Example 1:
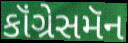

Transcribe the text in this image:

કૉંગ્રેસમૅન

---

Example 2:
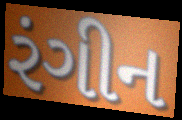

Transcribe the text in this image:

રંગીન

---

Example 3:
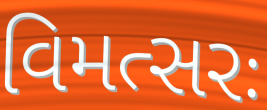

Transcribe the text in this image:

વિમત્સરઃ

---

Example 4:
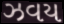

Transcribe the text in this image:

ઝવય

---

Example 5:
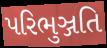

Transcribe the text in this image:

પરિભુઞ્જતિ